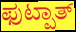
ಫುಟ್ಪಾತ್